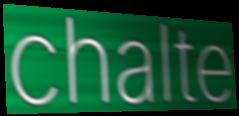
chalte